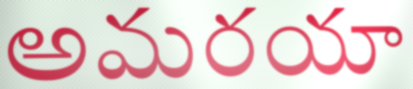
అమరయా